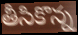
తీసికొన్న